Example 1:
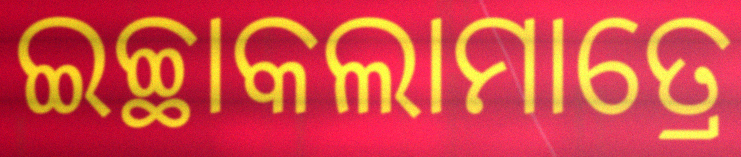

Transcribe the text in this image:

ଇଚ୍ଛାକଲାମାତ୍ରେ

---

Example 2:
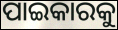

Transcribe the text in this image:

ପାଇକାରକୁ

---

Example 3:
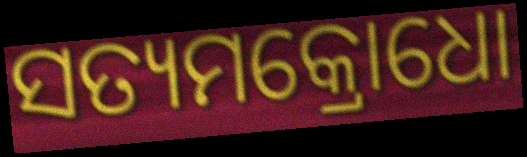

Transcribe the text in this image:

ସତ୍ୟମକ୍ରୋଧୋ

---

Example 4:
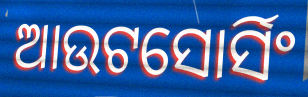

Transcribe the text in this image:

ଆଉଟସୋର୍ସିଂ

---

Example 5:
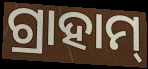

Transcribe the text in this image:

ଗ୍ରାହାମ୍